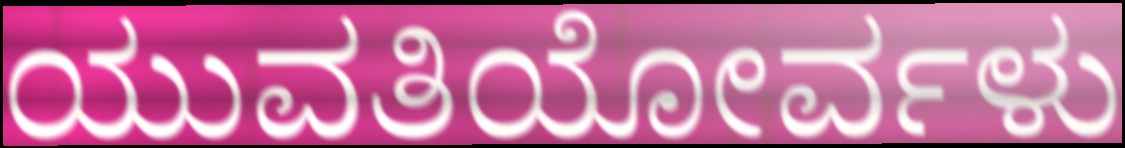
ಯುವತಿಯೋರ್ವಳು